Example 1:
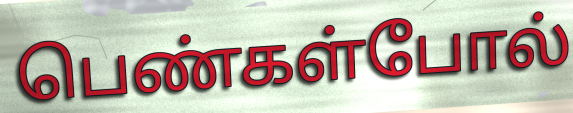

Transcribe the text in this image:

பெண்கள்போல்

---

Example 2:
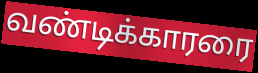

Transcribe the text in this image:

வண்டிக்காரரை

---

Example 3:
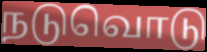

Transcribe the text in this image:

நடுவொடு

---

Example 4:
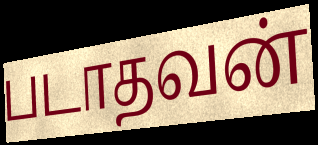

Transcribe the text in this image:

படாதவன்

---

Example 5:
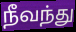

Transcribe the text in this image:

நீவந்து